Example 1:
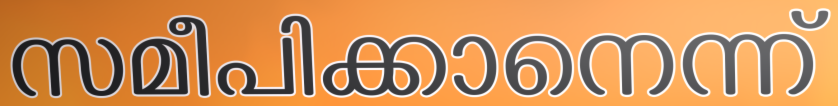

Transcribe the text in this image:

സമീപിക്കാനെന്ന്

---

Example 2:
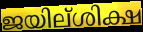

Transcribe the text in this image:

ജയില്ശിക്ഷ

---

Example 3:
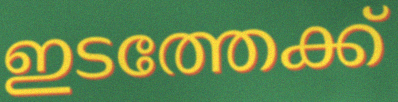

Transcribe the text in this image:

ഇടത്തേക്ക്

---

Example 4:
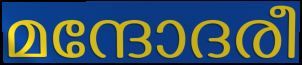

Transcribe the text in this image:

മന്ദോദരീ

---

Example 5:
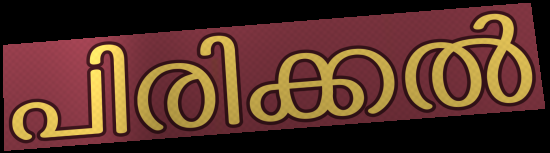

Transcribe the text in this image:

പിരിക്കൽ